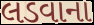
લડવાના